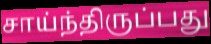
சாய்ந்திருப்பது